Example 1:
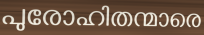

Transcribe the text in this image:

പുരോഹിതന്മാരെ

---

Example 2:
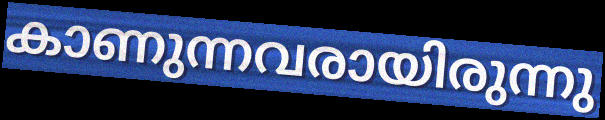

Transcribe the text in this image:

കാണുന്നവരായിരുന്നു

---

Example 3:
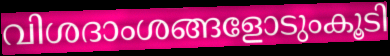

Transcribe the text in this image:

വിശദാംശങ്ങളോടുംകൂടി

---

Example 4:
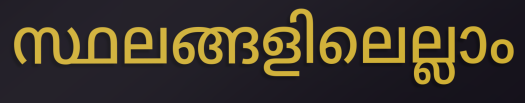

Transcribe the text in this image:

സ്ഥലങ്ങളിലെല്ലാം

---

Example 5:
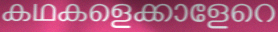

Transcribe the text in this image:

കഥകളെക്കാളേറെ